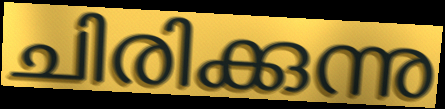
ചിരിക്കുന്നു